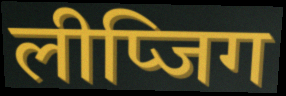
लीप्जिग